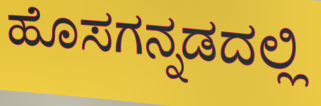
ಹೊಸಗನ್ನಡದಲ್ಲಿ